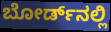
ಬೋರ್ಡ್‌ನಲ್ಲಿ